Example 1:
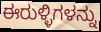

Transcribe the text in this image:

ಈರುಳ್ಳಿಗಳನ್ನು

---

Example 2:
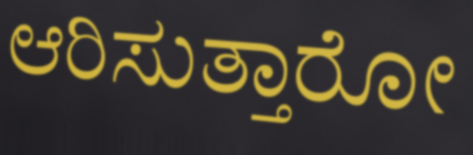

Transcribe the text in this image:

ಆರಿಸುತ್ತಾರೋ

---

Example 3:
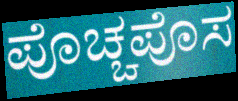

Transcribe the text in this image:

ಪೊಚ್ಚಪೊಸ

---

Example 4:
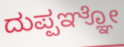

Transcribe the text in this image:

ದುಪ್ಪಞ್ಞೋ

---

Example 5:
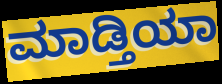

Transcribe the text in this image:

ಮಾಡ್ತಿಯಾ